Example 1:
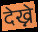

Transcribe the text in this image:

देख्ने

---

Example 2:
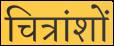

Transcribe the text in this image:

चित्रांशों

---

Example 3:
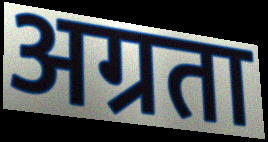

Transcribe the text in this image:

अग्रता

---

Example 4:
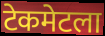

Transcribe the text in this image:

टेकमेटला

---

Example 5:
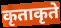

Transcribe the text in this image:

कृताकृते